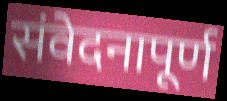
संवेदनापूर्ण